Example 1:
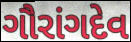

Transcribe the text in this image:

ગૌરાંગદેવ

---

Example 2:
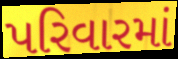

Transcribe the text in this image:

પરિવારમાં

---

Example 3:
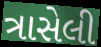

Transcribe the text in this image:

ત્રાસેલી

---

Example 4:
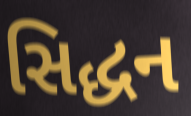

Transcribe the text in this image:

સિદ્ધન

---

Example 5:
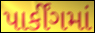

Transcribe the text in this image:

પાર્કીંગમાં